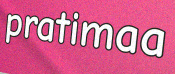
pratimaa